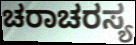
ಚರಾಚರಸ್ಯ